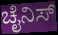
ಚೈನಿಸ್